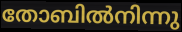
തോബിൽനിന്നു